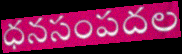
ధనసంపదల